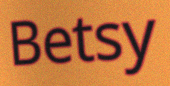
Betsy